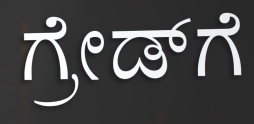
ಗ್ರೇಡ್‌ಗೆ